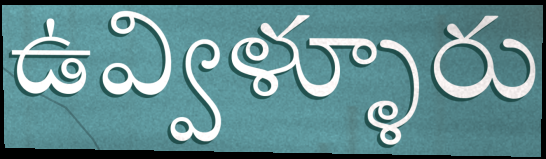
ఉవ్విళ్ళూరు